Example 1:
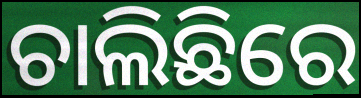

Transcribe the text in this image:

ଚାଲିଛିରେ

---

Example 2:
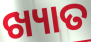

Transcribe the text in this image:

ଖ୍ୟାତ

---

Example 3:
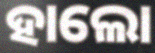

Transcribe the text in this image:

ହାଲୋ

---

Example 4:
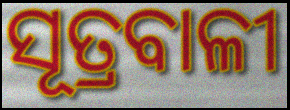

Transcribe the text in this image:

ସୂତ୍ରବାଳୀ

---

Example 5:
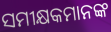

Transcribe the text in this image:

ସମୀକ୍ଷକମାନଙ୍କ